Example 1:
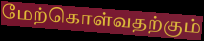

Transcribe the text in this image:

மேற்கொள்வதற்கும்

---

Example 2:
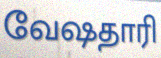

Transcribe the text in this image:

வேஷதாரி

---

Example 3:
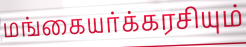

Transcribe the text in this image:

மங்கையர்க்கரசியும்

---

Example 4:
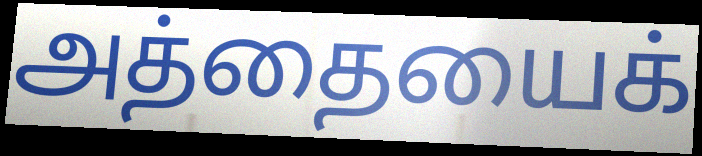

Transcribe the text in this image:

அத்தையைக்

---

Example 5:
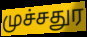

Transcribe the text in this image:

முச்சதுர